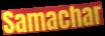
Samachar